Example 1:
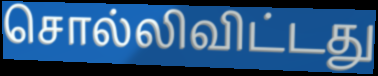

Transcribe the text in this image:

சொல்லிவிட்டது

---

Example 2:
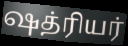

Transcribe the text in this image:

ஷத்ரியர்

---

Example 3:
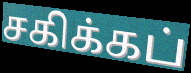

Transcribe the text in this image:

சகிக்கப்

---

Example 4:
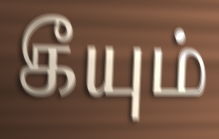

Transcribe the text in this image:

கீயும்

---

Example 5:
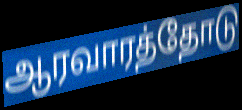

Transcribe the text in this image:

ஆரவாரத்தோடு